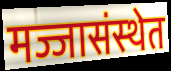
मज्जासंस्थेत